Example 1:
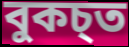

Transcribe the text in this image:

বুকচ্ত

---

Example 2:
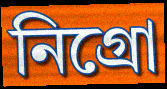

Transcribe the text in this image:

নিগ্ৰো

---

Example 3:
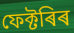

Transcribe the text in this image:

ফেক্টৰিৰ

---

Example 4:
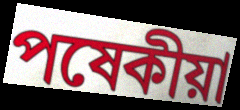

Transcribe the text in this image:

পষেকীয়া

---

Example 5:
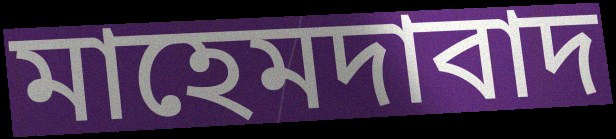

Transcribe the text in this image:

মাহেমদাবাদ